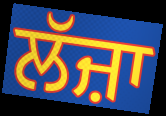
ਲੱਜ਼ਾ